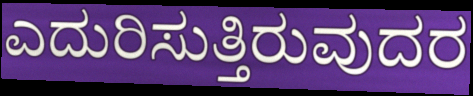
ಎದುರಿಸುತ್ತಿರುವುದರ